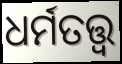
ଧର୍ମତତ୍ତ୍ଵ